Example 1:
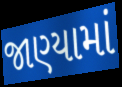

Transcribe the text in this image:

જાણ્યામાં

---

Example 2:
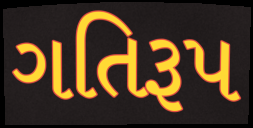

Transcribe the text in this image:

ગતિરૂપ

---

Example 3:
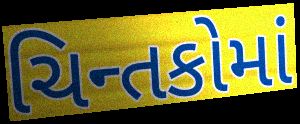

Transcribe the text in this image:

ચિન્તકોમાં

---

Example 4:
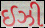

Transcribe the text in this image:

ઈઝી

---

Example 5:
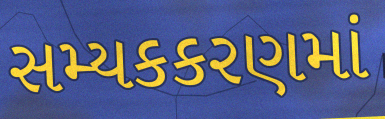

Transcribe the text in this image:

સમ્યકકરણમાં